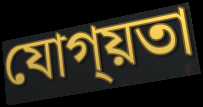
যোগ্য়তা